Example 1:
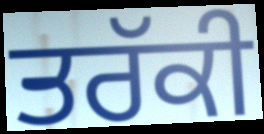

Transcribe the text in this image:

ਤਰੱਕੀ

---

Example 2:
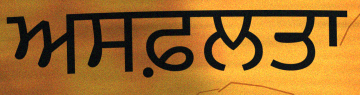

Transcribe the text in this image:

ਅਸਫ਼ਲਤਾ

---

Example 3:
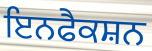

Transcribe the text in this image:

ਇਨਫੈਕਸ਼ਨ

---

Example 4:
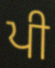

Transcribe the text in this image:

ਪੀ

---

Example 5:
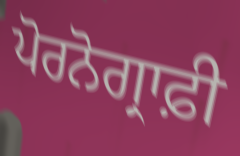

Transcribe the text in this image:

ਪੋਰਨੋਗ੍ਰਾਫ਼ੀ